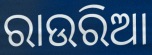
ରାଉରିଆ